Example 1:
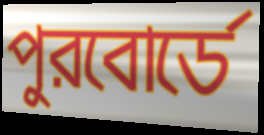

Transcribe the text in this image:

পুরবোর্ডে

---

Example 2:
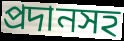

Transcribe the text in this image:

প্রদানসহ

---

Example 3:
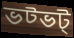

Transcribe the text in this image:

ভট্ভট্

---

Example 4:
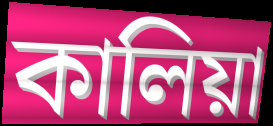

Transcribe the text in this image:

কালিয়া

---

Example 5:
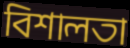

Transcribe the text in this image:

বিশালতা